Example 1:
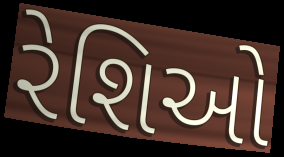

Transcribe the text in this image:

રેશિઓ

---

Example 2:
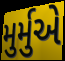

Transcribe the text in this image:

મુર્મુએ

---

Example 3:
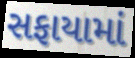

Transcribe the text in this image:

સફાયામાં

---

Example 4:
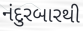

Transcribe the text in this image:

નંદુરબારથી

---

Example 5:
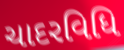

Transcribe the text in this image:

ચાદરવિધિ